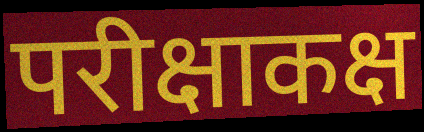
परीक्षाकक्ष